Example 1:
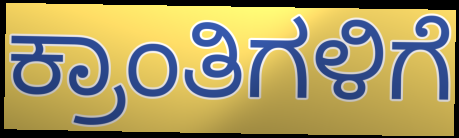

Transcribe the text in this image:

ಕ್ರಾಂತಿಗಳಿಗೆ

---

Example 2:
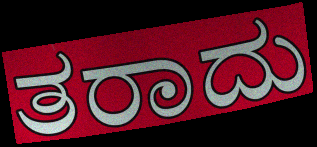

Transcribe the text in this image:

ತರಾದು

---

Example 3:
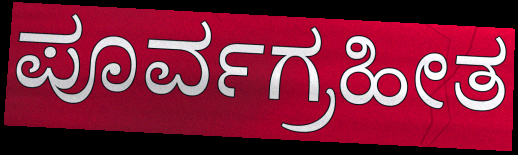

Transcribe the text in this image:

ಪೂರ್ವಗ್ರಹೀತ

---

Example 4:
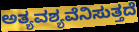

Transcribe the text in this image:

ಅತ್ಯವಶ್ಯವೆನಿಸುತ್ತದೆ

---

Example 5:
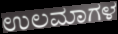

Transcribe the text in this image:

ಉಲಮಾಗಳ